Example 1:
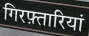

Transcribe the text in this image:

गिरफ़्तारियां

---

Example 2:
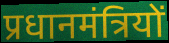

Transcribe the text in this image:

प्रधानमंत्रियों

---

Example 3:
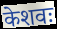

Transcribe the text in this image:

केशवः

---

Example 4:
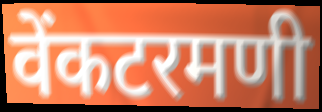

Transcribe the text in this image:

वेंकटरमणी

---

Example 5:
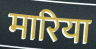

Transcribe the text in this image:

मारिया